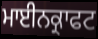
ਮਾਈਨਕ੍ਰਾਫਟ